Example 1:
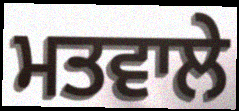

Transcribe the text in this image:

ਮਤਵਾਲੇ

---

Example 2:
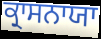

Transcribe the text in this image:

ਕ੍ਰਾਸਨਾਯਾ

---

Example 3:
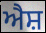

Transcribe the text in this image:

ਐਸ਼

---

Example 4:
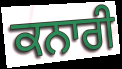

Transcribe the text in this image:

ਕਨਾਰੀ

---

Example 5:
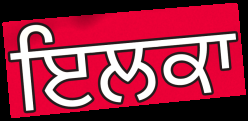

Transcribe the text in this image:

ਇਲਕਾ